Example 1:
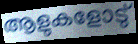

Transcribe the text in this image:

ആളുകളോടു്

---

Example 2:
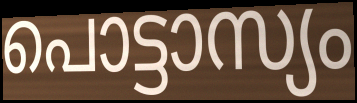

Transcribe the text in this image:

പൊട്ടാസ്യം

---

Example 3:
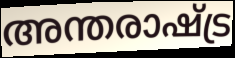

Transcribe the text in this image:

അന്തരാഷ്ട്ര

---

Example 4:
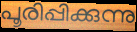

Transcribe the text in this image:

പൂരിപ്പിക്കുന്നു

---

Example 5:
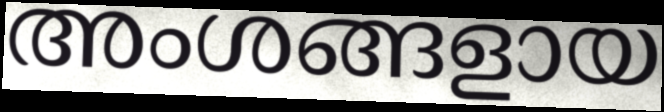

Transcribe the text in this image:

അംശങ്ങളായ